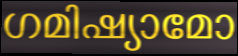
ഗമിഷ്യാമോ